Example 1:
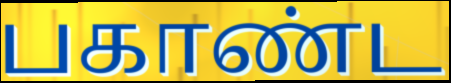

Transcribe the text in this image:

பகாண்ட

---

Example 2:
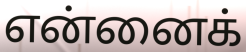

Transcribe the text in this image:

என்னைக்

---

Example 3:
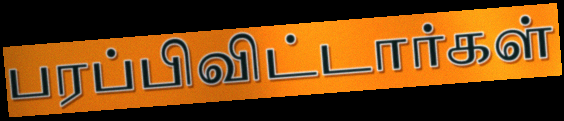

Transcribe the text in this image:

பரப்பிவிட்டார்கள்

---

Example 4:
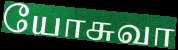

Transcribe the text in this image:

யோசுவா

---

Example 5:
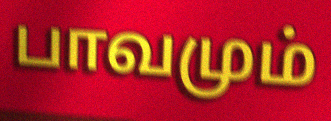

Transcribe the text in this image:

பாவமும்